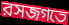
রসজগতে